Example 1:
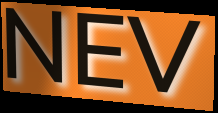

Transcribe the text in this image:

NEV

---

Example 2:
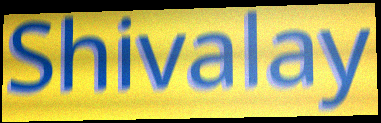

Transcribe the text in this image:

Shivalay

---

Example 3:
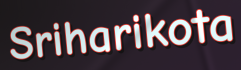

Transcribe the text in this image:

Sriharikota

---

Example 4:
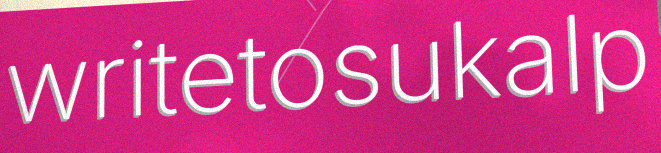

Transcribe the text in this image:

writetosukalp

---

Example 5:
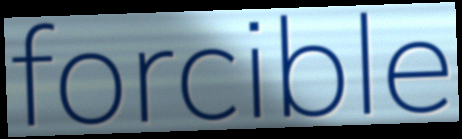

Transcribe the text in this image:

forcible